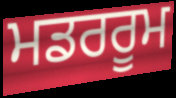
ਮਡਰਰੂਮ